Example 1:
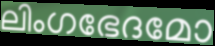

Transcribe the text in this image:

ലിംഗഭേദമോ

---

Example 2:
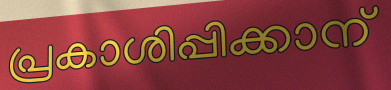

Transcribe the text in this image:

പ്രകാശിപ്പിക്കാന്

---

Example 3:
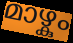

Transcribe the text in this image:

മാഴ്കും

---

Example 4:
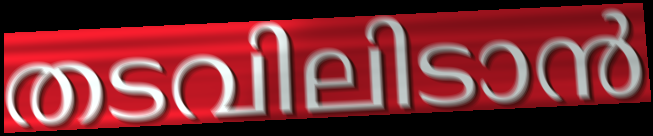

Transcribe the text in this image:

തടവിലിടാൻ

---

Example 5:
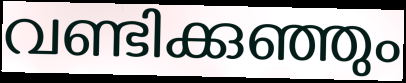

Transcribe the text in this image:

വണ്ടിക്കുഞ്ഞും